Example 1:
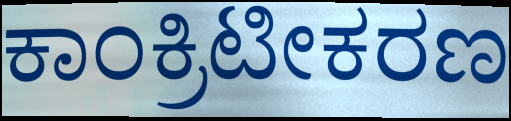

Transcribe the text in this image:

ಕಾಂಕ್ರಿಟೀಕರಣ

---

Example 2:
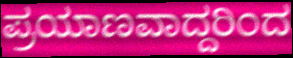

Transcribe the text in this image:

ಪ್ರಯಾಣವಾದ್ದರಿಂದ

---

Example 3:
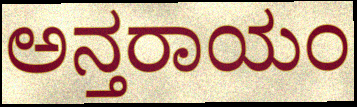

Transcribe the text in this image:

ಅನ್ತರಾಯಂ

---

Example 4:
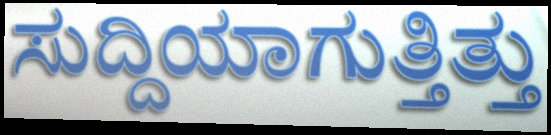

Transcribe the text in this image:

ಸುದ್ದಿಯಾಗುತ್ತಿತ್ತು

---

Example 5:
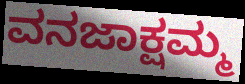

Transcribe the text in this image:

ವನಜಾಕ್ಷಮ್ಮ